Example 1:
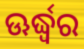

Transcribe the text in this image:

ଊର୍ଦ୍ଧ୍ଵର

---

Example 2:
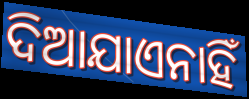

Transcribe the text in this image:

ଦିଆଯାଏନାହିଁ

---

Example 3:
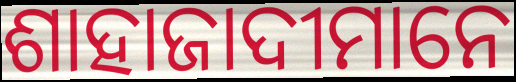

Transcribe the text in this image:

ଶାହାଜାଦୀମାନେ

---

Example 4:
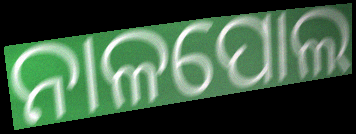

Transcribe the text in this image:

ନାଳପୋଲ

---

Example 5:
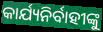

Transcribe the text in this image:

କାର୍ଯ୍ୟନିର୍ବାହୀଙ୍କୁ